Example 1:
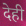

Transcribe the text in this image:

देही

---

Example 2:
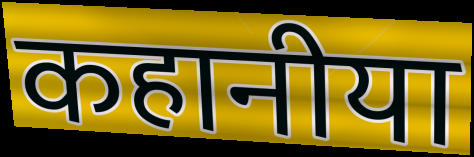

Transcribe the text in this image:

कहानीया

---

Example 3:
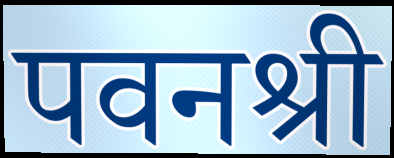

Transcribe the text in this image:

पवनश्री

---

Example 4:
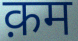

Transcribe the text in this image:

क़म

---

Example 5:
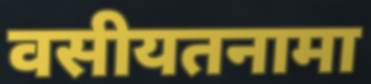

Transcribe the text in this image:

वसीयतनामा